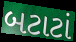
બટાટાં